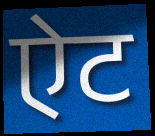
ऐट